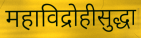
महाविद्रोहीसुद्धा